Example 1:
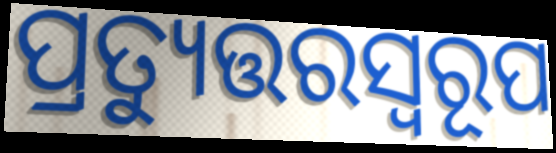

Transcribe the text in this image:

ପ୍ରତ୍ୟୁତ୍ତରସ୍ଵରୂପ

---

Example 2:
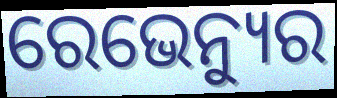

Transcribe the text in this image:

ରେଭେନ୍ୟୁର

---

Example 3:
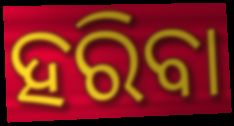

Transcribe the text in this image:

ହରିବା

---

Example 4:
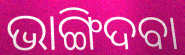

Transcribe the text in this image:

ଭାଙ୍ଗିଦବା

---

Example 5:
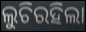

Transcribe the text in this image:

ଲୁଚିରହିଲା